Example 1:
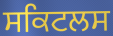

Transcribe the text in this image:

ਸਕਿਟਲਸ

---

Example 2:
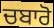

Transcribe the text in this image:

ਚਬਾਰੋ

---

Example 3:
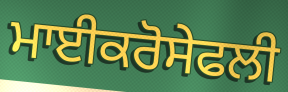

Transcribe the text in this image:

ਮਾਈਕਰੋਸੇਫਲੀ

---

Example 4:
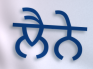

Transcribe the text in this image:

ਲੈਨੇ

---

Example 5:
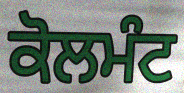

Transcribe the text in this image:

ਕੋਲਮੰਟ